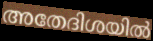
അതേദിശയിൽ